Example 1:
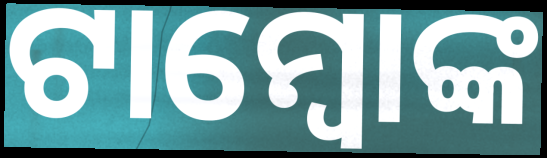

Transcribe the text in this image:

ଟାମ୍ବୋଙ୍କ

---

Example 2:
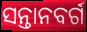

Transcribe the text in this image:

ସନ୍ତାନବର୍ଗ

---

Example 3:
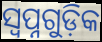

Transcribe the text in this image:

ସ୍ୱପ୍ନଗୁଡ଼ିକ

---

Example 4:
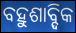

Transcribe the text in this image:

ବହୁଶାବ୍ଦିକ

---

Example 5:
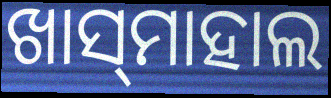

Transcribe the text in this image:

ଖାସ୍‌ମାହାଲ